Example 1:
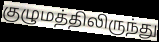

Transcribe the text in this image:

குழுமத்திலிருந்து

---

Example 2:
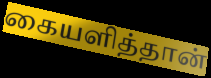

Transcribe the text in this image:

கையளித்தான்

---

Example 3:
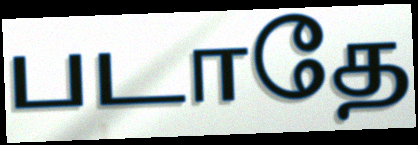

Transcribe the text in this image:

படாதே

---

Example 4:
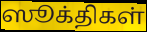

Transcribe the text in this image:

ஸூக்திகள்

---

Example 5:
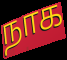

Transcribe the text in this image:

நாக